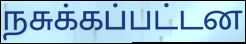
நசுக்கப்பட்டன